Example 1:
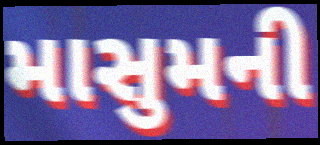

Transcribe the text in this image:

માસુમની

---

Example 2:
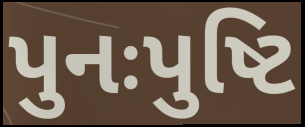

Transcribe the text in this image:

પુનઃપુષ્ટિ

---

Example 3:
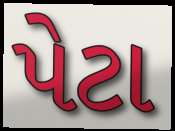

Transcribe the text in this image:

પેટા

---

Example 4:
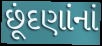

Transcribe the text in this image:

છૂંદણાંનાં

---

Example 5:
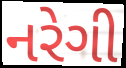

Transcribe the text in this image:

નરેગી